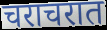
चराचरात